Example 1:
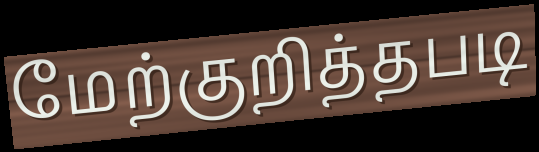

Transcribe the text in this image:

மேற்குறித்தபடி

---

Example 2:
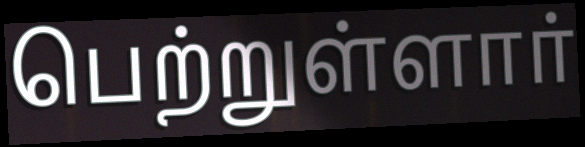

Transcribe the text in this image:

பெற்றுள்ளார்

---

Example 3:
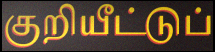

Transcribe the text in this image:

குறியீட்டுப்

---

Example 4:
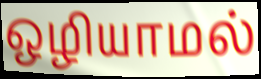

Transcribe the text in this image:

ஒழியாமல்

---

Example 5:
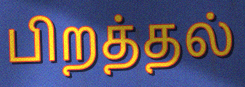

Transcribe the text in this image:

பிறத்தல்